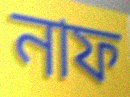
নাফ